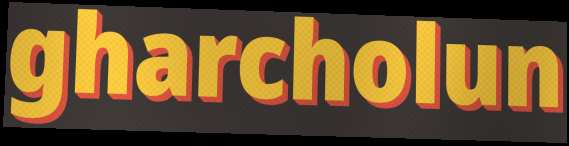
gharcholun